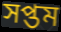
সপ্তম